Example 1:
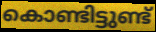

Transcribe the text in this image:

കൊണ്ടിട്ടുണ്ട്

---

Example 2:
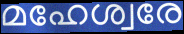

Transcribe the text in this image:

മഹേശ്വരേ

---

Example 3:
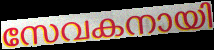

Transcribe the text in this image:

സേവകനായി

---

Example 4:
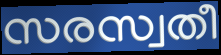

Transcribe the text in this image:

സരസ്വതീ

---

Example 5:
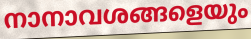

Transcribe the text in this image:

നാനാവശങ്ങളെയും